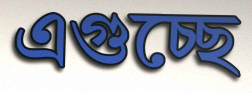
এগুচ্ছে